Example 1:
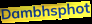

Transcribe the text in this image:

Dambhsphot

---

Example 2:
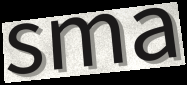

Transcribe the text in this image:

sma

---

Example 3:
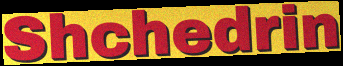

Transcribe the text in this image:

Shchedrin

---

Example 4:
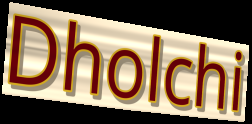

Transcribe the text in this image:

Dholchi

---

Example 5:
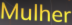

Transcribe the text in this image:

Mulher